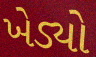
ખેડ્યો